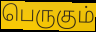
பெருகும்